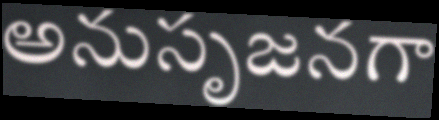
అనుసృజనగా